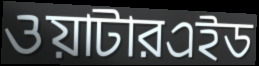
ওয়াটারএইড